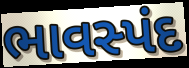
ભાવસ્પંદ